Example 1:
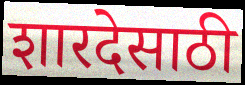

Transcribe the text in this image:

शारदेसाठी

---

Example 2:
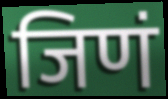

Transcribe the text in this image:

जिणं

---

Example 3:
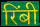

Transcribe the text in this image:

रिंबी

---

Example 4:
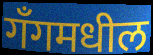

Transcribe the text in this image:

गँगमधील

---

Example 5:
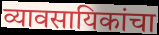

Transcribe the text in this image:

व्यावसायिकांचा